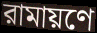
রামায়ণে